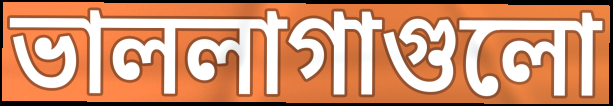
ভাললাগাগুলো